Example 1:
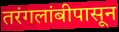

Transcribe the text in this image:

तरंगलांबीपासून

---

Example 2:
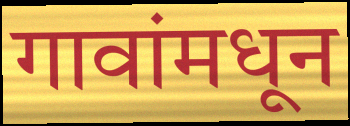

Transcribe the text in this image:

गावांमधून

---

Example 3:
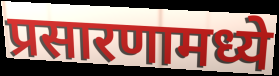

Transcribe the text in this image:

प्रसारणामध्ये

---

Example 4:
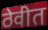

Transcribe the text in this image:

ठेवीत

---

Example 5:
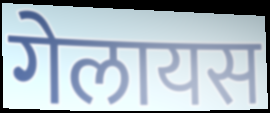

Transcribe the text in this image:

गेलायस